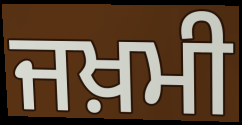
ਜਖ਼ਮੀ